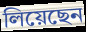
লিয়েছেন